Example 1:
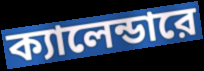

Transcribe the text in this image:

ক্যালেন্ডারে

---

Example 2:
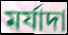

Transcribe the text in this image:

মর্যাদা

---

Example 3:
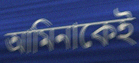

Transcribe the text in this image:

আমিনাকেই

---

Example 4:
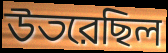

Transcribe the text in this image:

উতরেছিল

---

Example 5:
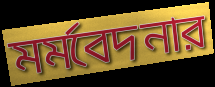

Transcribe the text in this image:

মর্মবেদনার